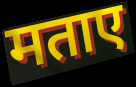
मताए